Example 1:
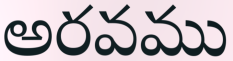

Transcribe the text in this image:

అరవము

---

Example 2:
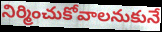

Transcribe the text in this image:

నిర్మించుకోవాలనుకునే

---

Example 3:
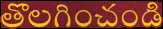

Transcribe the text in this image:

తొలగించండి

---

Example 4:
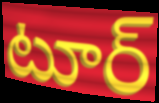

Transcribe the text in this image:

టూర్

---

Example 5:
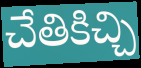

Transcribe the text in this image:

చేతికిచ్చి